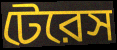
টেরেস